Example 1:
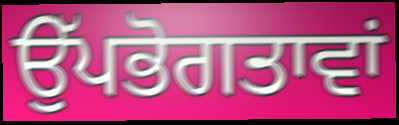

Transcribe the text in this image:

ਉੱਪਭੋਗਤਾਵਾਂ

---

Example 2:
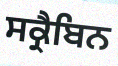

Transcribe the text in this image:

ਸਕ੍ਰੈਬਿਨ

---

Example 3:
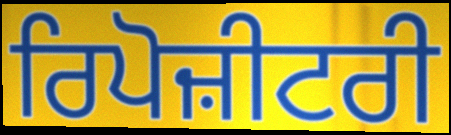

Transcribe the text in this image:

ਰਿਪੋਜ਼ੀਟਰੀ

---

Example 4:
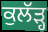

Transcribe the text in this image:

ਕੁਲੱੜ੍ਹ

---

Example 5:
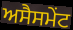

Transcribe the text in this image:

ਅਸੈਸਮੇਂਟ